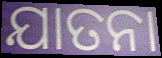
ଯାତନା